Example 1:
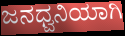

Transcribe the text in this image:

ಜನಧ್ವನಿಯಾಗಿ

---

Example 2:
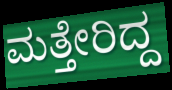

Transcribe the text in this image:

ಮತ್ತೇರಿದ್ದ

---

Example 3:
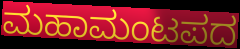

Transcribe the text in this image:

ಮಹಾಮಂಟಪದ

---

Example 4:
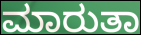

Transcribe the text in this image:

ಮಾರುತಾ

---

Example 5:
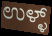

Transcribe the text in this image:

ಉಳ್ಳ್